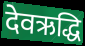
देवऋद्धि